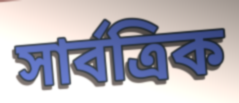
সার্বত্রিক